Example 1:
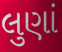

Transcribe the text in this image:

લુણાં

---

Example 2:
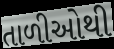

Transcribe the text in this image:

તાળીઓથી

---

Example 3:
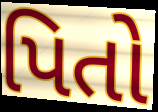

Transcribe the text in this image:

પિતો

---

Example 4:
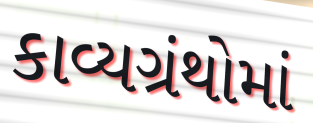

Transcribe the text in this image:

કાવ્યગ્રંથોમાં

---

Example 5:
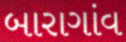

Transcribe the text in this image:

બારાગાંવ